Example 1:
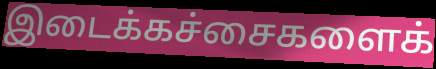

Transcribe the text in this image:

இடைக்கச்சைகளைக்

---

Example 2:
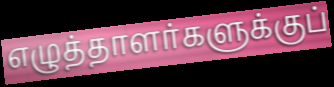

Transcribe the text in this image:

எழுத்தாளர்களுக்குப்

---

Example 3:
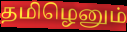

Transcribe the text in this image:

தமிழெனும்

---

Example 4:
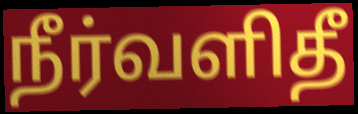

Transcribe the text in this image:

நீர்வளிதீ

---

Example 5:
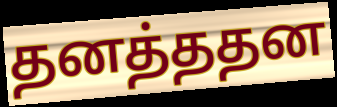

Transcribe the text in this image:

தனத்ததன